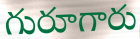
గురూగారు